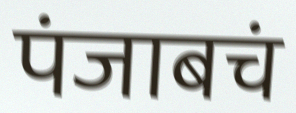
पंजाबचं